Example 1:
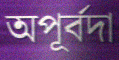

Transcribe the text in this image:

অপূর্বদা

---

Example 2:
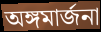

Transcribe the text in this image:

অঙ্গমার্জনা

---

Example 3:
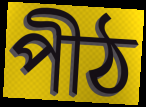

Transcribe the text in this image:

পীঠ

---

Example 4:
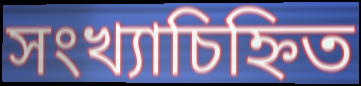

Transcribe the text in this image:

সংখ্যাচিহ্নিত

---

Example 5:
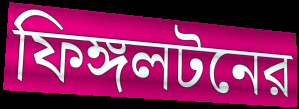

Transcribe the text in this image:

ফিঙ্গলটনের